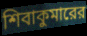
শিবাকুমারের